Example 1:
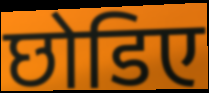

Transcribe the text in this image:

छोडिए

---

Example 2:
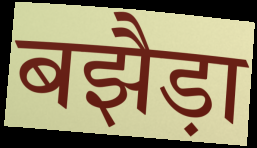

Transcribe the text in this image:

बझैड़ा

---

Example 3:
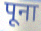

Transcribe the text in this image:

पूना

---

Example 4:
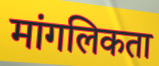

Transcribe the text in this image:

मांगलिकता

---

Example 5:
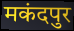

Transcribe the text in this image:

मकंदपुर